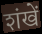
शंखें